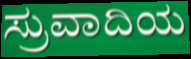
ಸ್ರುವಾದಿಯ